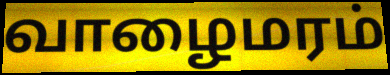
வாழைமரம்